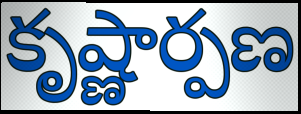
కృష్ణార్పణ